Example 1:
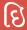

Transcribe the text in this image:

ઇિ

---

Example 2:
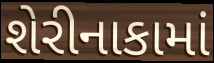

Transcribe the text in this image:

શેરીનાકામાં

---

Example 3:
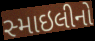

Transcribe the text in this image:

સ્માઇલીનો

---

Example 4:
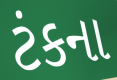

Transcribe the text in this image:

ટંકના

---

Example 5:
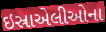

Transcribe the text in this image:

ઇસ્રાએલીઓના